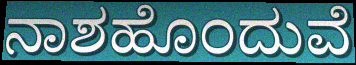
ನಾಶಹೊಂದುವೆ